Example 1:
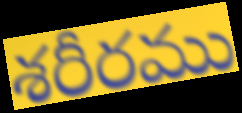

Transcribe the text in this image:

శరీరము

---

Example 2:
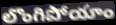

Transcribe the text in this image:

లొంగిపోయాం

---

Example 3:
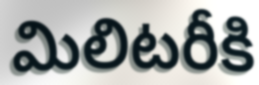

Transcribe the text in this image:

మిలిటరీకి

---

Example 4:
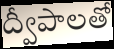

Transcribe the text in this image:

ద్వీపాలతో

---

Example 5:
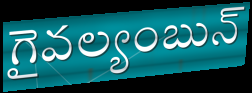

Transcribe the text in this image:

గైవల్యంబున్